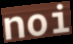
noi